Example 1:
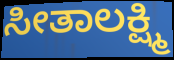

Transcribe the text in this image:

ಸೀತಾಲಕ್ಷ್ಮಿ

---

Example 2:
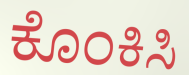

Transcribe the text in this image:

ಕೊಂಕಿಸಿ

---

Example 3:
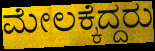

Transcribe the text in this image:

ಮೇಲಕ್ಕೆದ್ದರು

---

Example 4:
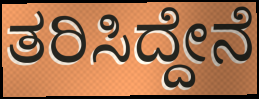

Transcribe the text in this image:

ತರಿಸಿದ್ದೇನೆ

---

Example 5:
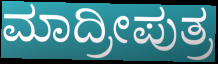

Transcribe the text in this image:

ಮಾದ್ರೀಪುತ್ರ